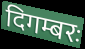
दिगम्बरः